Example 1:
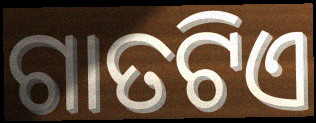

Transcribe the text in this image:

ଗାତଟିଏ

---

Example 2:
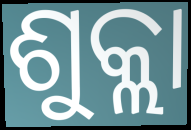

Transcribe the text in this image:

ଶୁକ୍ଲା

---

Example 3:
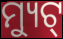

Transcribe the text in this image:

ମ୍ୟୁଟ୍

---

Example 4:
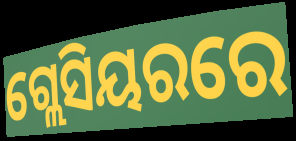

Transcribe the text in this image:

ଗ୍ଲେସିୟରରେ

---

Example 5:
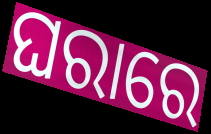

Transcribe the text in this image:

ଘରାରେ